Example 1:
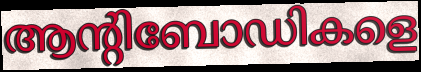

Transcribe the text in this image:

ആന്റിബോഡികളെ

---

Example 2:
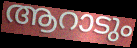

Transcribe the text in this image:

ആറാടും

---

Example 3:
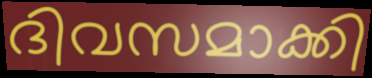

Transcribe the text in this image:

ദിവസമാക്കി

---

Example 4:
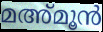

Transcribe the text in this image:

മഅ്മൂൻ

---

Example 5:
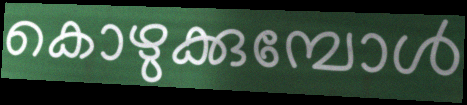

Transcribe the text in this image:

കൊഴുക്കുമ്പോൾ